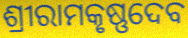
ଶ୍ରୀରାମକୃଷ୍ଣଦେବ